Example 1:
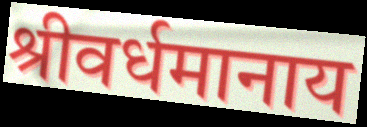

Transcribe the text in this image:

श्रीवर्धमानाय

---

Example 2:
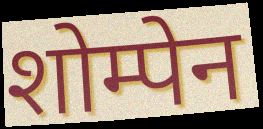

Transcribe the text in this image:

शोम्पेन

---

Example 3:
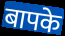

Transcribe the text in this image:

बापके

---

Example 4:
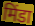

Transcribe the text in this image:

मिंडा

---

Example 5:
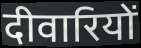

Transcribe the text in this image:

दीवारियों